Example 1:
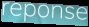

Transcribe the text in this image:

reponse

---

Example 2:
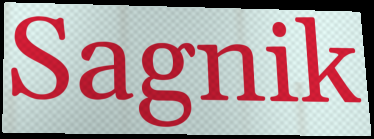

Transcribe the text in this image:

Sagnik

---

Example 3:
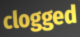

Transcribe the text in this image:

clogged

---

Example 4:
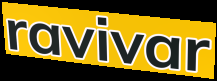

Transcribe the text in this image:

ravivar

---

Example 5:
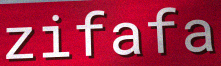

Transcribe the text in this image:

zifafa